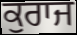
ਕੁਰਾਜ